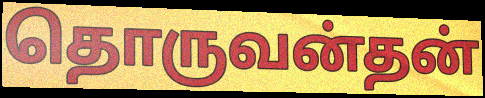
தொருவன்தன்